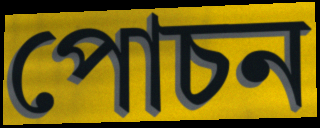
পোচন